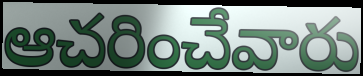
ఆచరించేవారు